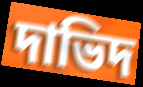
দাভিদ